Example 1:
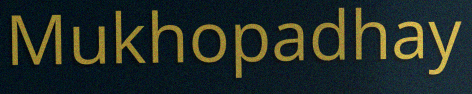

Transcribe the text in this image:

Mukhopadhay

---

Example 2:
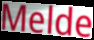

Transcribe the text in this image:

Melde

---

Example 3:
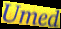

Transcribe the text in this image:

Umed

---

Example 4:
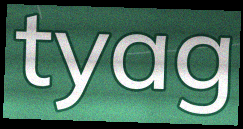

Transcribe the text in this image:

tyag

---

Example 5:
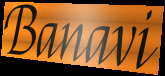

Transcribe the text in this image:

Banavi